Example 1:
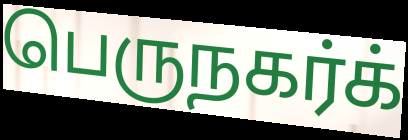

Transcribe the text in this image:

பெருநகர்க்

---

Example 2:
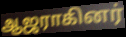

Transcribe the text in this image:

ஆஜராகினர்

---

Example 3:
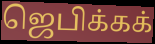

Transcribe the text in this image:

ஜெபிக்கக்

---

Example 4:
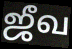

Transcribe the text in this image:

ஜீவ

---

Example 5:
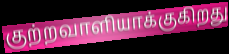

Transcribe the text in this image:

குற்றவாளியாக்குகிறது